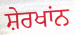
ਸ਼ੇਰਖਾਂਨ